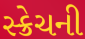
સ્ક્રેચની